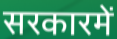
सरकारमें